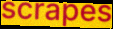
scrapes